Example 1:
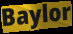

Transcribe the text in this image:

Baylor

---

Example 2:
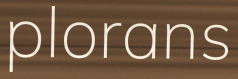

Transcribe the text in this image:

plorans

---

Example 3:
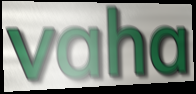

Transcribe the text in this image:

vaha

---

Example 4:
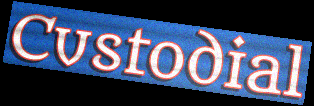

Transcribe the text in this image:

Custodial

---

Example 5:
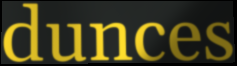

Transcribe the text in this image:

dunces